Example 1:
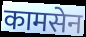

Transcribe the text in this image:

कामसेन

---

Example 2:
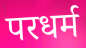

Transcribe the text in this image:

परधर्म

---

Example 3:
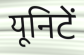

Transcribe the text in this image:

यूनिटें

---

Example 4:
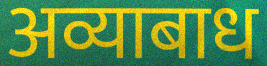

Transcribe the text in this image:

अव्याबाध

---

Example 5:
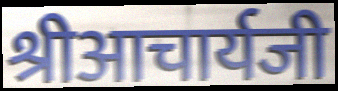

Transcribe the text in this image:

श्रीआचार्यजी